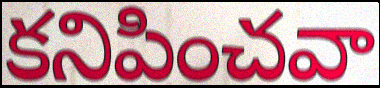
కనిపించవా